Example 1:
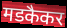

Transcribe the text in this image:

मडकैकर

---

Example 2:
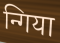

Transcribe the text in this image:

न्गिया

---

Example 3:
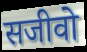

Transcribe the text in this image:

सजीवो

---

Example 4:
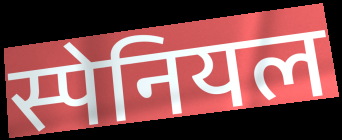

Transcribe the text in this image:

स्पेनियल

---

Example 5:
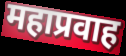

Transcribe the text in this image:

महाप्रवाह